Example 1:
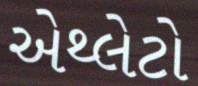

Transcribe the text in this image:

એથ્લેટો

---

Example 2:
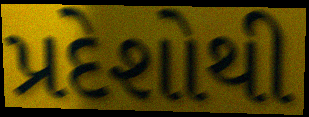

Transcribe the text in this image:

પ્રદેશોથી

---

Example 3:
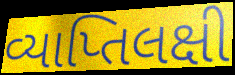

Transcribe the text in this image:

વ્યાપ્તિલક્ષી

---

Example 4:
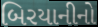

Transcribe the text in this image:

બિરયાનીનો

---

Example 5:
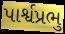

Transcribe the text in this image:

પાર્શ્વપ્રભુ